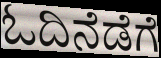
ಓದಿನೆಡೆಗೆ